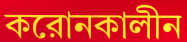
করোনকালীন